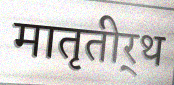
मातृतीर्थ